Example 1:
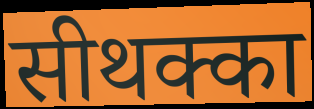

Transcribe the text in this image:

सीथक्का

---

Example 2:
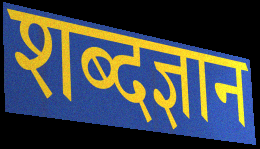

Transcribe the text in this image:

शब्दज्ञान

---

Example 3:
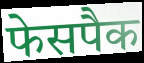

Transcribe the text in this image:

फेसपैक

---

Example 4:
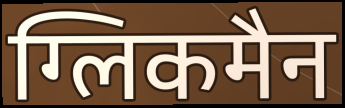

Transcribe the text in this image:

ग्लिकमैन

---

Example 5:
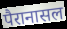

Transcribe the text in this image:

पैरानासल